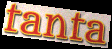
tanta